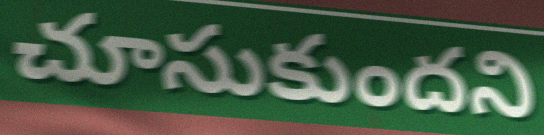
చూసుకుందని